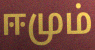
ஈமும்